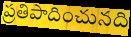
ప్రతిపాదించునది